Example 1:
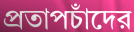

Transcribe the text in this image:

প্রতাপচাঁদের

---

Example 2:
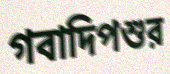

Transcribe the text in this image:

গবাদিপশুর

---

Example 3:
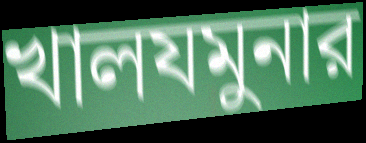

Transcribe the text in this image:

খালযমুনার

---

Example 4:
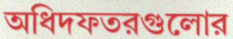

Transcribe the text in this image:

অধিদফতরগুলোর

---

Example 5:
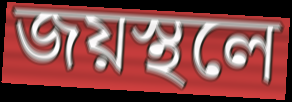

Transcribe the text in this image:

জয়স্থলে